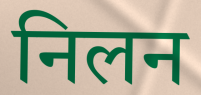
निलन